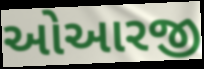
ઓઆરજી